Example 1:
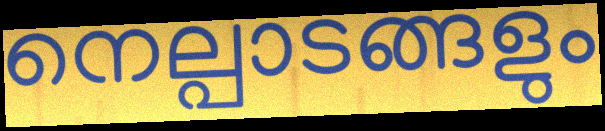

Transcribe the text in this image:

നെല്പാടങ്ങളും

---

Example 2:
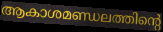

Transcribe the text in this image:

ആകാശമണ്ഡലത്തിന്റെ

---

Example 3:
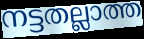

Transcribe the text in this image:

നട്ടതല്ലാത്ത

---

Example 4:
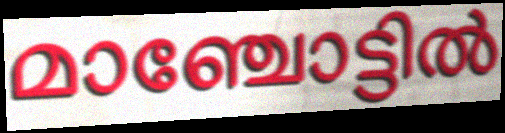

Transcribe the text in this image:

മാഞ്ചോട്ടിൽ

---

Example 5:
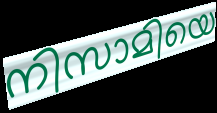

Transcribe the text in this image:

നിസാമിയെ